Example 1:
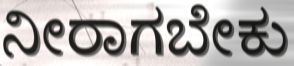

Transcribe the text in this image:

ನೀರಾಗಬೇಕು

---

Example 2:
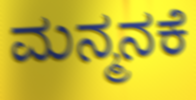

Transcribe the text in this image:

ಮನ್ಮನಕೆ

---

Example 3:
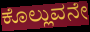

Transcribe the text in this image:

ಕೊಲ್ಲುವನೇ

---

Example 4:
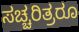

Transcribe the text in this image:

ಸಚ್ಚರಿತ್ರರೂ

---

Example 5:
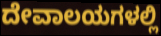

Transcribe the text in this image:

ದೇವಾಲಯಗಳಲ್ಲಿ